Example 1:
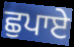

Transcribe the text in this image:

ਛੁਪਾਏ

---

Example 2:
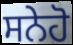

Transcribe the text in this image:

ਸਨੇਹੋ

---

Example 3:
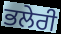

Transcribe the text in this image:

ਭਲੇਰੀ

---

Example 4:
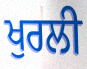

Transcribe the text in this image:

ਖੁਰਲੀ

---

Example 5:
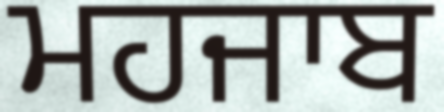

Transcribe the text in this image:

ਮਹਜਾਬ